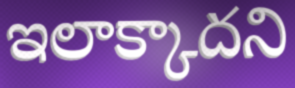
ఇలాక్కాదని